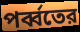
পর্ব্বতের